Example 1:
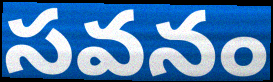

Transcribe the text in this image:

సవనం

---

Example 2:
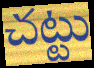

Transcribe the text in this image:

చట్టు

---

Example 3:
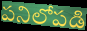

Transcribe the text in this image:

పనిలోపడి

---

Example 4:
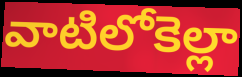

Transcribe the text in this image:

వాటిలోకెల్లా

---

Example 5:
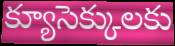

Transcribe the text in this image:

క్యూసెక్కులకు